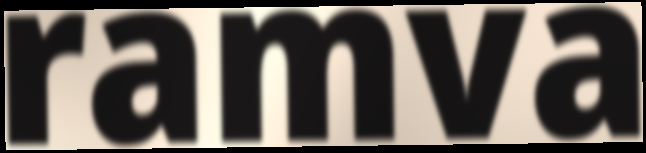
ramva